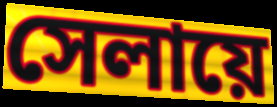
সেলায়ে